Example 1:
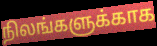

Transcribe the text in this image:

நிலங்களுக்காக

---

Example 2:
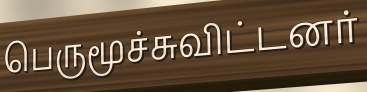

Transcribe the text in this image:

பெருமூச்சுவிட்டனர்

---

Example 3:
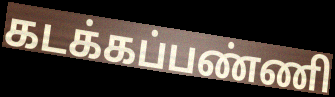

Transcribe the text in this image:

கடக்கப்பண்ணி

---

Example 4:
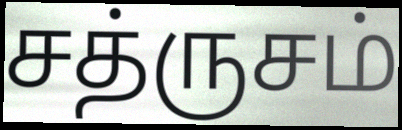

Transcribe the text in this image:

சத்ருசம்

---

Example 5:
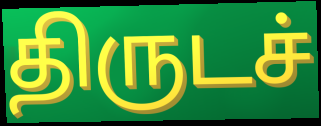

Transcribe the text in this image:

திருடச்